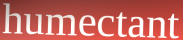
humectant